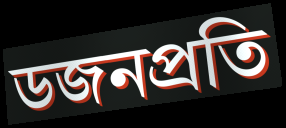
ডজনপ্রতি